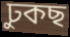
ঢুকছ